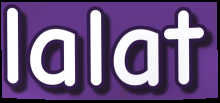
lalat